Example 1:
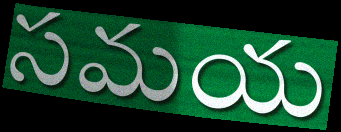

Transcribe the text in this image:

సమయ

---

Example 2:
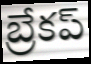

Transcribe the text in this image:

బ్రేకప్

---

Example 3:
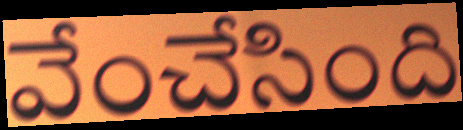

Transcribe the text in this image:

వేంచేసింది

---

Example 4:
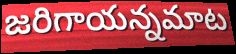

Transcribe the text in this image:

జరిగాయన్నమాట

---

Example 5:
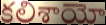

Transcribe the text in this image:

కలిశాయో